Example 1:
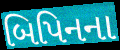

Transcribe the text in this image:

બિપિનના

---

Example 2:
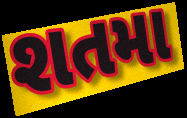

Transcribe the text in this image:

શતમા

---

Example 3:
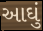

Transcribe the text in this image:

આઘું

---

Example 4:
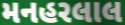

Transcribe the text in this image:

મનહરલાલ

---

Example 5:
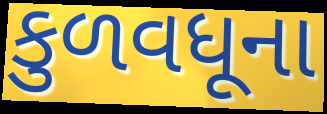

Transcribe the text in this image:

કુળવધૂના